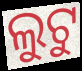
ଲୁଟୁ